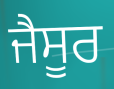
ਜੈਸੂਰ